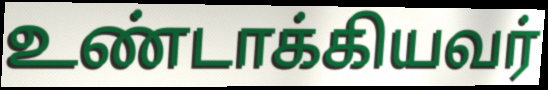
உண்டாக்கியவர்